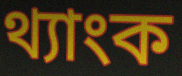
থ্যাংক